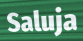
Saluja